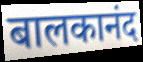
बालकानंद